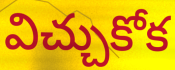
విచ్చుకోక